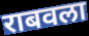
राबवला